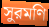
সুরমণি